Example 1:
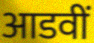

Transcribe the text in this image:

आडवीं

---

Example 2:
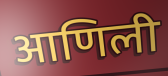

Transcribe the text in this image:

आणिली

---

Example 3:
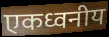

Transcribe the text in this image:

एकध्वनीय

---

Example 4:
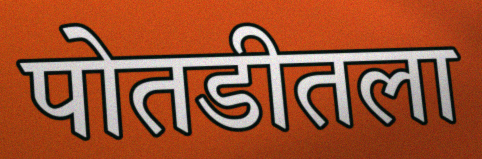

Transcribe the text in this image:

पोतडीतला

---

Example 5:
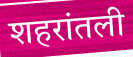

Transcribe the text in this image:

शहरांतली